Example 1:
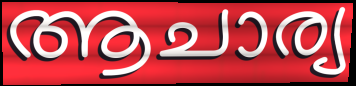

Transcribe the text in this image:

ആചാര്യ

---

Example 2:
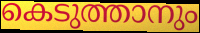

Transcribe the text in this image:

കെടുത്താനും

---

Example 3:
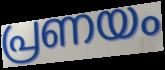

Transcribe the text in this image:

പ്രണയം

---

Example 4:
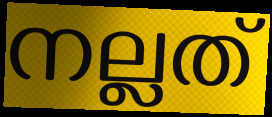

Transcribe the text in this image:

നല്ലത്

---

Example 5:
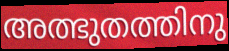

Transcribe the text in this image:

അത്ഭുതത്തിനു